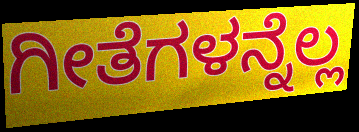
ಗೀತೆಗಳನ್ನೆಲ್ಲ